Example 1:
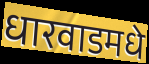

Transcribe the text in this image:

धारवाडमधे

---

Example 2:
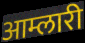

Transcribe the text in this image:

आम्लारी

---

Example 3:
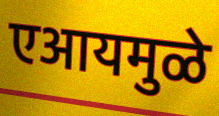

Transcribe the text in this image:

एआयमुळे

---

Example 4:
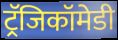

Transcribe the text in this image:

ट्रॅजिकॉमेडी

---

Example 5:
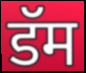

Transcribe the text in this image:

डॅम